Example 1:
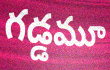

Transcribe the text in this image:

గడ్డమూ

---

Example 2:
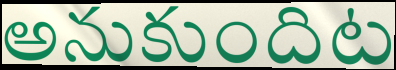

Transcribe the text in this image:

అనుకుందిట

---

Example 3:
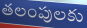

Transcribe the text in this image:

తలంపులకు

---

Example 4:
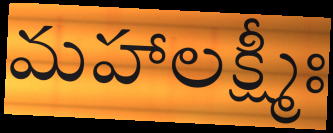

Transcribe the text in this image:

మహాలక్ష్మీః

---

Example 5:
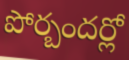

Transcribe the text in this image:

పోర్బందర్లో